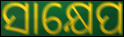
ସାକ୍ଷେପ